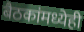
बैठकांमध्येही